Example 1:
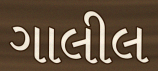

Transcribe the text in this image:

ગાલીલ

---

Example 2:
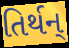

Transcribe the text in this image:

તિર્થન્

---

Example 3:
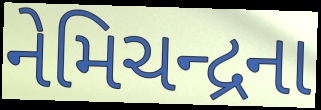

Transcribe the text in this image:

નેમિચન્દ્રના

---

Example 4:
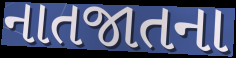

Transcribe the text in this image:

નાતજાતના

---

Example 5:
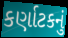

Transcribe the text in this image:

કર્ણાટકનું